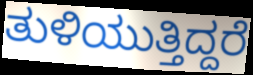
ತುಳಿಯುತ್ತಿದ್ದರೆ